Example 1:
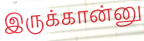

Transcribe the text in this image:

இருக்கான்னு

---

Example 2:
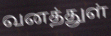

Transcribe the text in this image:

வனத்துள்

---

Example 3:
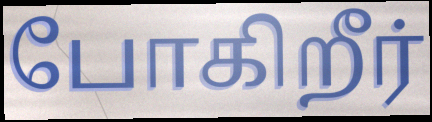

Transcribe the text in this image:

போகிறீர்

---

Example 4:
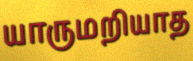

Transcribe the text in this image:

யாருமறியாத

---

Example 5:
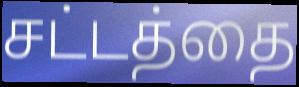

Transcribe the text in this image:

சட்டத்தை